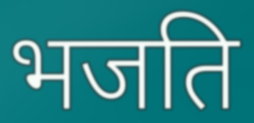
भजति